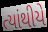
ત્યાંથીયે